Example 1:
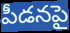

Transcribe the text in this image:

పీడనపై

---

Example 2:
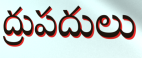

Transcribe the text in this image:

ద్రుపదులు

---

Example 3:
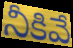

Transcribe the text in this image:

నీకివే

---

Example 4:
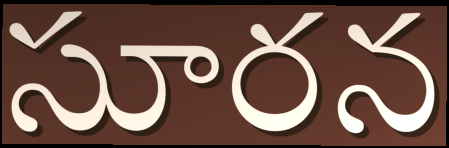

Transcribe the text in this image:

సూరన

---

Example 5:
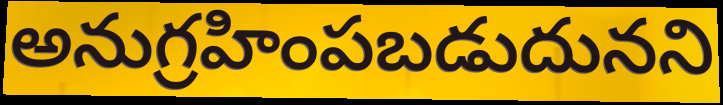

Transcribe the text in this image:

అనుగ్రహింపబడుదునని